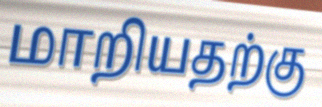
மாறியதற்கு